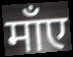
माँए